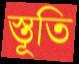
স্তূতি